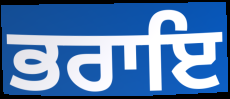
ਭਰਾਇ